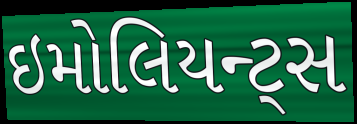
ઇમોલિયન્ટ્સ